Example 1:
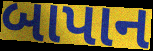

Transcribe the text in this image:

બાપાન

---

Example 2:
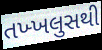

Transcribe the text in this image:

તખ્ખલુસથી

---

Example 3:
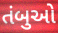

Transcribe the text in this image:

તંબુઓ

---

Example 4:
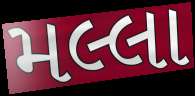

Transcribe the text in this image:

મલ્લા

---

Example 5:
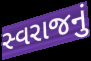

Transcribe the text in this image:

સ્વરાજનું